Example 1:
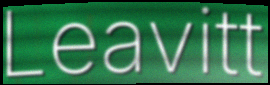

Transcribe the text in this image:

Leavitt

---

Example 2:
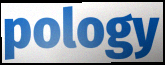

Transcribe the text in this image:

pology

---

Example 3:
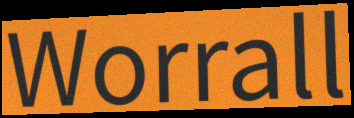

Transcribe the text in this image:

Worrall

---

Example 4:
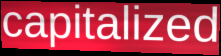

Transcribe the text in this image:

capitalized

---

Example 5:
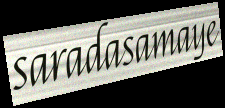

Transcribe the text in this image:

saradasamaye